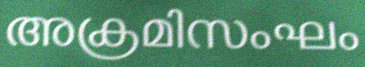
അക്രമിസംഘം